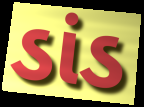
ડાંડ